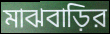
মাঝবাড়ির